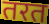
तरत